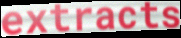
extracts